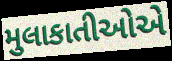
મુલાકાતીઓએ